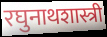
रघुनाथशास्त्री